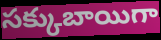
సక్కుబాయిగా